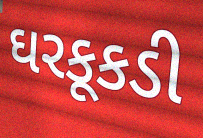
ઘરકૂકડી